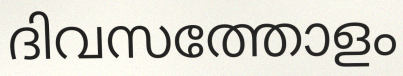
ദിവസത്തോളം